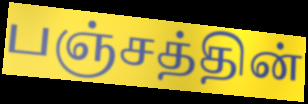
பஞ்சத்தின்